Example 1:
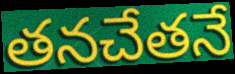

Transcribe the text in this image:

తనచేతనే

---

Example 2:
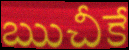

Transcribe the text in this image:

ఋచీకే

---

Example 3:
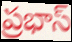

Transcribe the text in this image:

ప్రభాస్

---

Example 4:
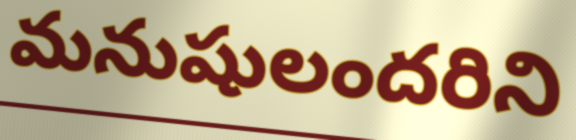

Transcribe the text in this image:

మనుషులందరిని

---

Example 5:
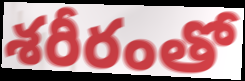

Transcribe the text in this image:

శరీరంతో